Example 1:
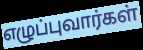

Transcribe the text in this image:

எழுப்புவார்கள்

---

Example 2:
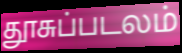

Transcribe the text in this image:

தூசுப்படலம்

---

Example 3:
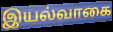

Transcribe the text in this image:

இயல்வாகை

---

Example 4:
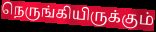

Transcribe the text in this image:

நெருங்கியிருக்கும்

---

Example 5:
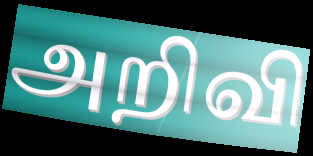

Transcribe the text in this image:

அறிவி